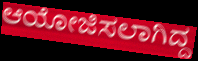
ಆಯೋಜಿಸಲಾಗಿದ್ದ